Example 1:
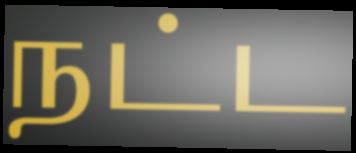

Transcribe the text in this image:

நட்ட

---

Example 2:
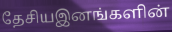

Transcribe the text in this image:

தேசியஇனங்களின்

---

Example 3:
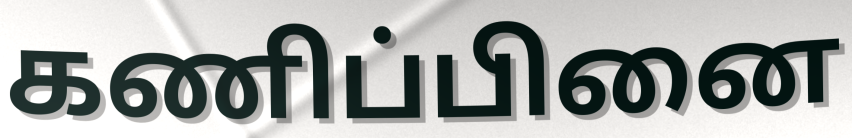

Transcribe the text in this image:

கணிப்பினை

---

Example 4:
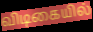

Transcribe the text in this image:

விடிகையில்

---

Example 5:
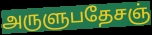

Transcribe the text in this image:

அருளுபதேசஞ்